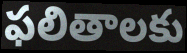
ఫలితాలకు